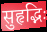
सुहृद्भिः